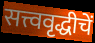
सत्त्ववृद्धीचें